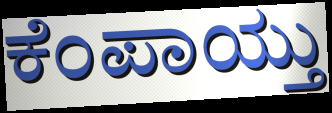
ಕೆಂಪಾಯ್ತು